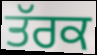
ਤੱਰਕ